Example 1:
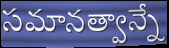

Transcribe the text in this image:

సమానత్వాన్నే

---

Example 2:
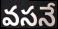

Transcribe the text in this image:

వసనే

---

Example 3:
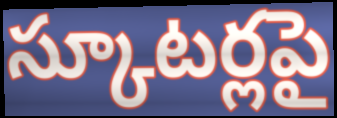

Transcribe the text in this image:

స్కూటర్లపై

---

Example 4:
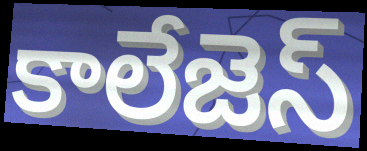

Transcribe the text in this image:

కాలేజెస్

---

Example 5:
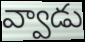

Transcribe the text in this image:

వ్వాడు